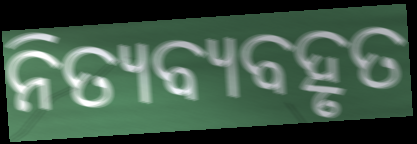
ନିତ୍ୟବ୍ୟବହୃତ